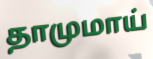
தாமுமாய்